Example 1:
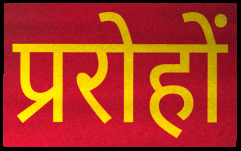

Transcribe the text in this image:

प्ररोहों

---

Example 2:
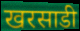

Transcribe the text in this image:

खरसाडी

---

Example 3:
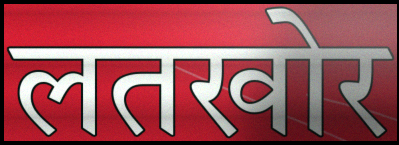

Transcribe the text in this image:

लतखोर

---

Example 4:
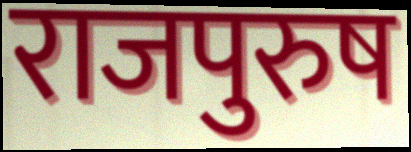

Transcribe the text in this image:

राजपुरुष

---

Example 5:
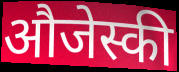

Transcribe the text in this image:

औजेस्की